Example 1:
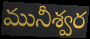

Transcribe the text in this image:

మునీశ్వర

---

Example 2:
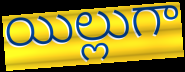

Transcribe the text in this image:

యిల్లుగా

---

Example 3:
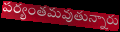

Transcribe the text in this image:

పర్యంతమవుతున్నారు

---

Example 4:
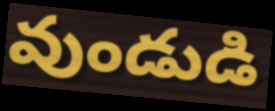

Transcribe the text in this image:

వుండుడి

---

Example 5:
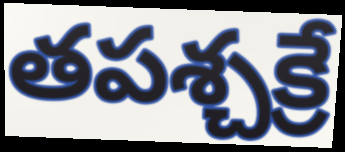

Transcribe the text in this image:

తపశ్చక్రే